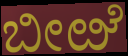
ಬೀೞೆ